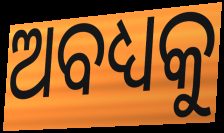
ଅବଧ୍ୟକୁ